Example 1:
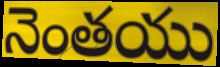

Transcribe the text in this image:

నెంతయు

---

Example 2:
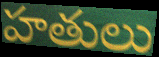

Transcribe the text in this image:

హతులు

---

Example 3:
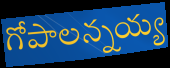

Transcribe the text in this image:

గోపాలన్నయ్య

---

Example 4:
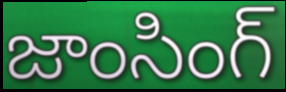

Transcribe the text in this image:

జాంసింగ్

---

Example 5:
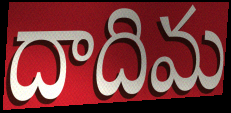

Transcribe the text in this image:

దాదిమ